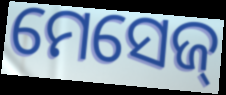
ମେସେଜ୍